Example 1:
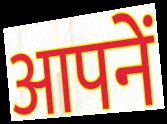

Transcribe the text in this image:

आपनें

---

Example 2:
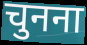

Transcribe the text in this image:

चुनना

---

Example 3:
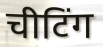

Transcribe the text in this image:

चीटिंग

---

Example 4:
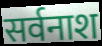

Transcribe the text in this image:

सर्वनाश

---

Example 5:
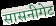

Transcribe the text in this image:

सासनीगेट